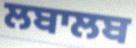
ਲਬਾਲਬ